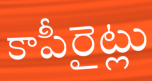
కాపీరైట్లు